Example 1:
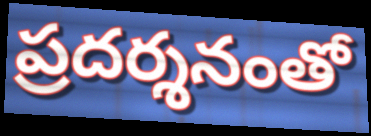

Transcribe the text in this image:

ప్రదర్శనంతో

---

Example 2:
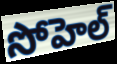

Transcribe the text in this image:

సోహెల్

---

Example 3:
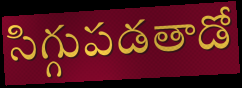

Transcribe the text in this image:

సిగ్గుపడతాడో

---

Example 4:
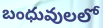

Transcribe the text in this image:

బంధువులలో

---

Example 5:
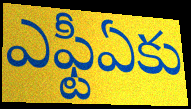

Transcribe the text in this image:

ఎఫ్టీఏకు